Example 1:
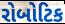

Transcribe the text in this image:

રોબોટિક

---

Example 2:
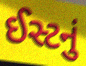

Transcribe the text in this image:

ઈસ્ટનું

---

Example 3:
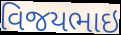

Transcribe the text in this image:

વિજયભાઇ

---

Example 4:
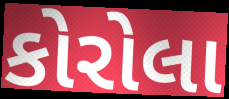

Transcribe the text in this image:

કોરોલા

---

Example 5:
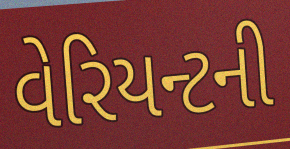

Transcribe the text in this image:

વેરિયન્ટની